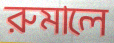
রুমালে